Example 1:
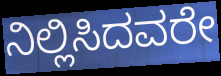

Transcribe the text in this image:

ನಿಲ್ಲಿಸಿದವರೇ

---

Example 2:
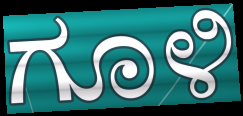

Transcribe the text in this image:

ಗೂಳಿ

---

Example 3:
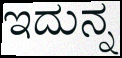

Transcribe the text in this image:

ಇದುನ್ನ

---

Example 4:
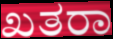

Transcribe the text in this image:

ಖತರಾ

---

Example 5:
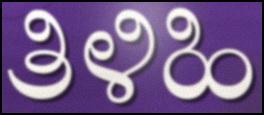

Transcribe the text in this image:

ತಿಳಿಹಿ